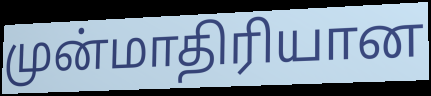
முன்மாதிரியான